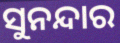
ସୁନନ୍ଦାର